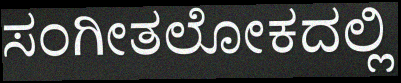
ಸಂಗೀತಲೋಕದಲ್ಲಿ